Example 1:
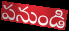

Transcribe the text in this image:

పనుండి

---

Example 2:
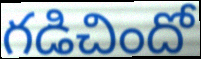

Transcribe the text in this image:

గడిచిందో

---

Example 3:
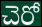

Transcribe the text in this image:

చెరో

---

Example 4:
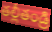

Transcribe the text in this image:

తల్లీతండ్రి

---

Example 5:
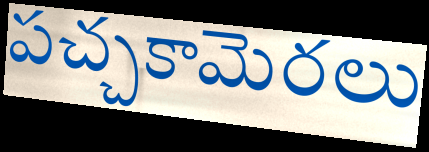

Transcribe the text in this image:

పచ్చకామెరలు